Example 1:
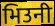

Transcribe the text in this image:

भिउनी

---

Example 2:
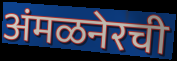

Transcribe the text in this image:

अंमळनेरची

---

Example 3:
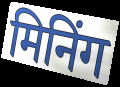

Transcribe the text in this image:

मिनिंग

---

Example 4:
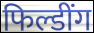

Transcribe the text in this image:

फिल्डींग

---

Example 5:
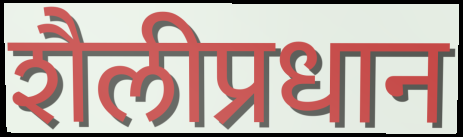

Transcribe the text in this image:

शैलीप्रधान